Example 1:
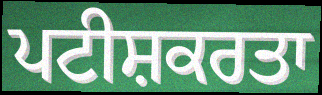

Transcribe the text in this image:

ਪਟੀਸ਼ਕਰਤਾ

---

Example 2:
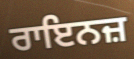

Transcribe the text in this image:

ਰਾਇਨਜ਼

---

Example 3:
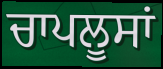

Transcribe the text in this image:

ਚਾਪਲੂਸਾਂ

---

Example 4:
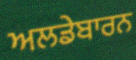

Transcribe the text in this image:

ਅਲਡੇਬਾਰਨ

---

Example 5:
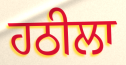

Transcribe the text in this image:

ਹਠੀਲਾ